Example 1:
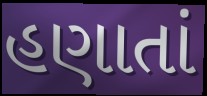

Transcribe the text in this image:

હણાતાં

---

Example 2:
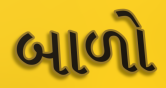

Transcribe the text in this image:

બાળો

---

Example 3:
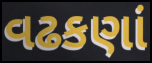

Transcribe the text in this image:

વઢકણાં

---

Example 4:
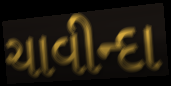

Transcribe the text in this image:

ચાવીન્દા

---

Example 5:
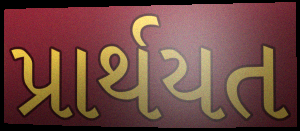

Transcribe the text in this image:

પ્રાર્થયત